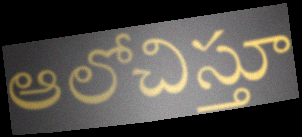
ఆలోచిస్తూ